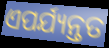
ଏପର୍ଯ୍ୟନ୍ତତ